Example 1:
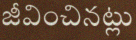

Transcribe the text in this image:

జీవించినట్లు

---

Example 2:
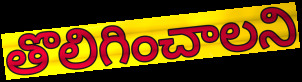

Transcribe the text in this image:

తొలిగించాలని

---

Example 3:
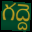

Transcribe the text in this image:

గద్దె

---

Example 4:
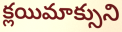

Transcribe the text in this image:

క్లయిమాక్సుని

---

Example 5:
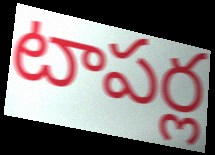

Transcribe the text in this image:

టాపర్ల